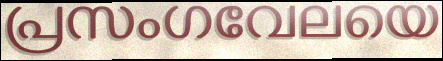
പ്രസംഗവേലയെ